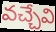
వచ్చేవి